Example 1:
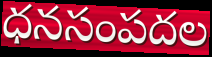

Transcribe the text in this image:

ధనసంపదల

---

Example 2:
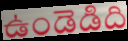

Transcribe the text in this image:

ఉండెడిది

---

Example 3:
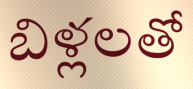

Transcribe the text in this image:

బిళ్లలతో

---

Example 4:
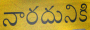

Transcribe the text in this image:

నారదునికి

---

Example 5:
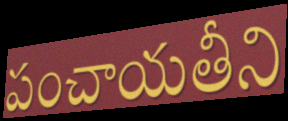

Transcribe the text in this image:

పంచాయతీని